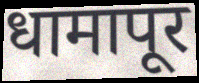
धामापूर